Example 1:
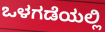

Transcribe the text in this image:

ಒಳಗಡೆಯಲ್ಲಿ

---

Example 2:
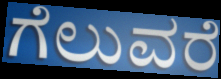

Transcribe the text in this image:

ಗೆಲುವರೆ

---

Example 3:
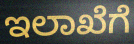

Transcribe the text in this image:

ಇಲಾಖೆಗೆ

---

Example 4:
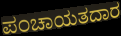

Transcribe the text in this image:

ಪಂಚಾಯತದಾರ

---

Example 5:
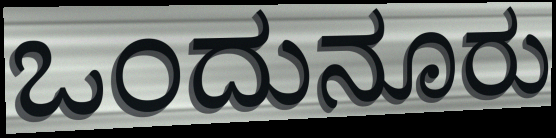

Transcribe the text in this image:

ಒಂದುನೂರು